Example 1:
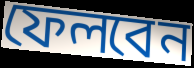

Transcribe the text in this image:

ফেলবেন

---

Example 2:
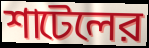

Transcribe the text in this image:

শাটেলের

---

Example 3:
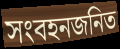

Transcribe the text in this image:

সংবহনজনিত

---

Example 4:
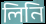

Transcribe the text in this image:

লিনি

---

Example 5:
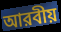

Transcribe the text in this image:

আরবীয়